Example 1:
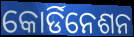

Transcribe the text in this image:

କୋର୍ଡିନେଶନ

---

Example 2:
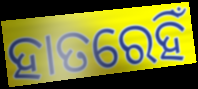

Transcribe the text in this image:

ହାତରେହିଁ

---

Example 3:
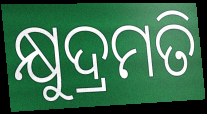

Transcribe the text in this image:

କ୍ଷୁଦ୍ରମତି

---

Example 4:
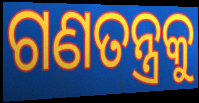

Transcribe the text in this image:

ଗଣତନ୍ତ୍ରକୁ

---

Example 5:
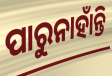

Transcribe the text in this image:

ପାରୁନାହାଁନ୍ତି